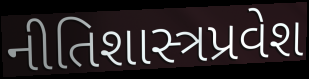
નીતિશાસ્ત્રપ્રવેશ